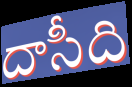
దాసీది